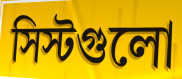
সিস্টগুলো